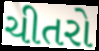
ચીતરો